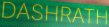
DASHRATH